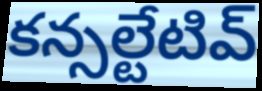
కన్సల్టేటివ్